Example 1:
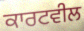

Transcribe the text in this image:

ਕਾਰਟਵੀਲ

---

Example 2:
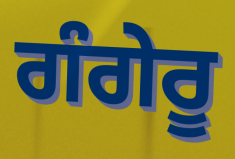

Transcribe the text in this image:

ਗੰਗੇਰੂ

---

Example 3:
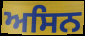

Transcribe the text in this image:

ਅਸਿਨ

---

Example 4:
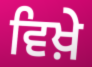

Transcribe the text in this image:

ਵਿਖ਼ੇ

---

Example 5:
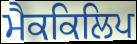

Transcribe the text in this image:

ਮੈਕਕਿਲਿਪ